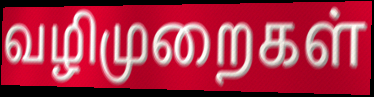
வழிமுறைகள்